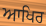
ਆਖਿਰ